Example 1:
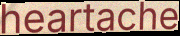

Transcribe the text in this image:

heartache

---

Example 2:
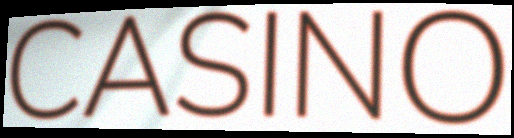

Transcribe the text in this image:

CASINO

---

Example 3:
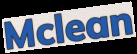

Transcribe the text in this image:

Mclean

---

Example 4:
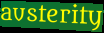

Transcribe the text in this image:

austerity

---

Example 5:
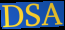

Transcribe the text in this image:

DSA